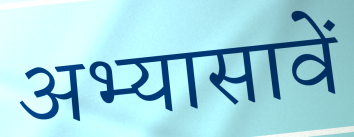
अभ्यासावें